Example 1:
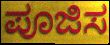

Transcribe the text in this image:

ಪೂಜಿಸ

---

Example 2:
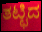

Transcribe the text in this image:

ತಟ್ಟಿದ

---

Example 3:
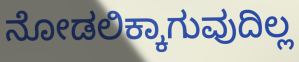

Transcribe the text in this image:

ನೋಡಲಿಕ್ಕಾಗುವುದಿಲ್ಲ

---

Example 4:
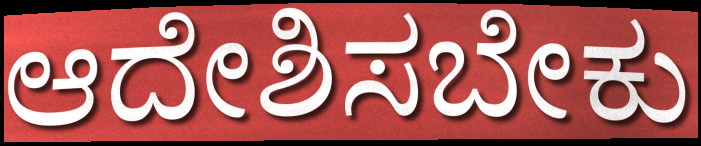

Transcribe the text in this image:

ಆದೇಶಿಸಬೇಕು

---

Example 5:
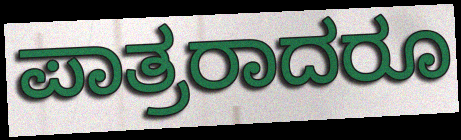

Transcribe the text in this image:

ಪಾತ್ರರಾದರೂ